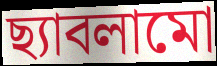
ছ্যাবলামো